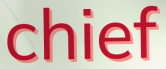
chief